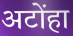
अटोंहा